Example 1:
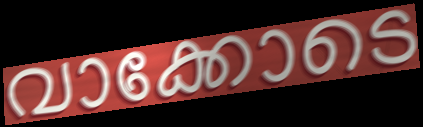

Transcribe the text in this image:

വാക്കോടെ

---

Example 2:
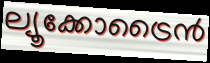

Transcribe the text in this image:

ല്യൂക്കോട്രൈൻ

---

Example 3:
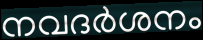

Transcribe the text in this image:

നവദർശനം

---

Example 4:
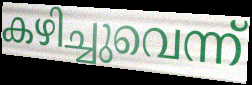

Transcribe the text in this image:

കഴിച്ചുവെന്ന്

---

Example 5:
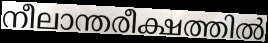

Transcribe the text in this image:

നീലാന്തരീക്ഷത്തിൽ